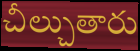
చీల్చుతారు